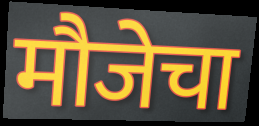
मौजेचा